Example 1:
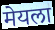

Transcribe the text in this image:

मेयला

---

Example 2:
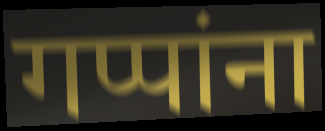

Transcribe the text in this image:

गप्पांना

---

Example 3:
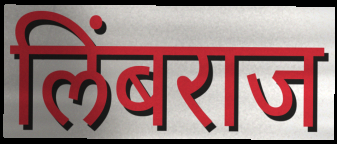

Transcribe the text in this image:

लिंबराज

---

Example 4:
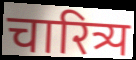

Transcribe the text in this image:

चारित्र्य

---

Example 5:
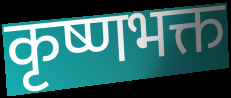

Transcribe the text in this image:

कृष्णभक्त